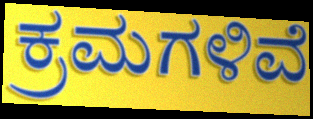
ಕ್ರಮಗಳಿವೆ